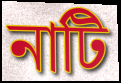
নাটি